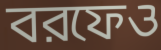
বরফেও